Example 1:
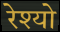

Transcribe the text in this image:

रेश्यो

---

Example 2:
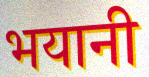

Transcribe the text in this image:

भयानी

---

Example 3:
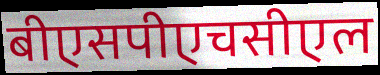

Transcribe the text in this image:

बीएसपीएचसीएल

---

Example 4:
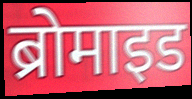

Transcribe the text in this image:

ब्रोमाइड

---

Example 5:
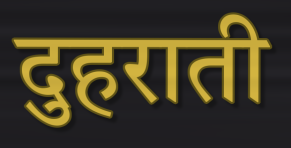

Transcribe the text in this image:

दुहराती